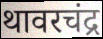
थावरचंद्र